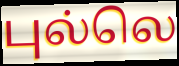
புல்லெ